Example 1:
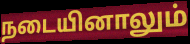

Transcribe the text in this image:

நடையினாலும்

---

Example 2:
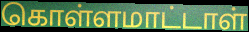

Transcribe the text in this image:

கொள்ளமாட்டாள்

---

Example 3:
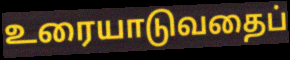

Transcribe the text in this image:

உரையாடுவதைப்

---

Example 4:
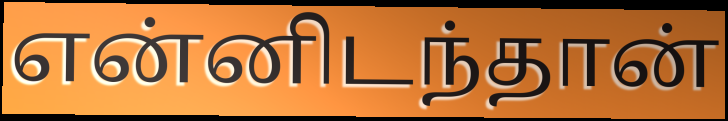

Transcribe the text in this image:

என்னிடந்தான்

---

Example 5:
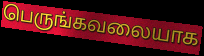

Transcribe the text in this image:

பெருங்கவலையாக